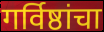
गर्विष्ठांचा